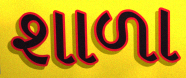
શાળા